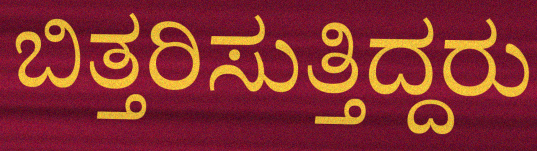
ಬಿತ್ತರಿಸುತ್ತಿದ್ದರು